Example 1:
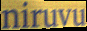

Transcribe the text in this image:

niruvu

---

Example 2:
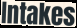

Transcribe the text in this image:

Intakes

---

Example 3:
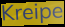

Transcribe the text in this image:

Kreipe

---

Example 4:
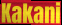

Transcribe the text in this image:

Kakani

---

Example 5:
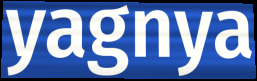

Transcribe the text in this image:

yagnya